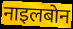
नाइलबोन